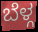
ಬೆಳ್ಗ